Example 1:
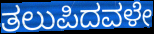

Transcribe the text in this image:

ತಲುಪಿದವಳೇ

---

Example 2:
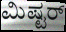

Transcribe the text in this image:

ಮಿಷ್ಟರ್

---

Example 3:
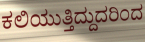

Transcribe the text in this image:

ಕಲಿಯುತ್ತಿದ್ದುದರಿಂದ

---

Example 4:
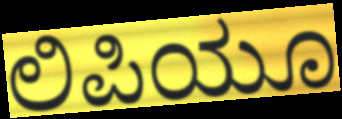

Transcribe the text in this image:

ಲಿಪಿಯೂ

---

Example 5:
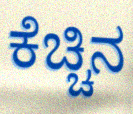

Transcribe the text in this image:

ಕೆಚ್ಚಿನ